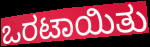
ಒರಟಾಯಿತು